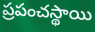
ప్రపంచస్థాయి